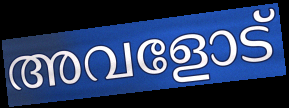
അവളോട്